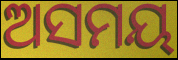
ଅସମୟ